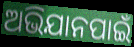
ଅଭିଯାନପାଇଁ